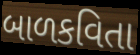
બાળકવિતા